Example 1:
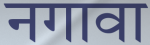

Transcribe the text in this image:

नगावा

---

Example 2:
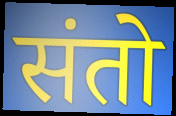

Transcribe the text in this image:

संतो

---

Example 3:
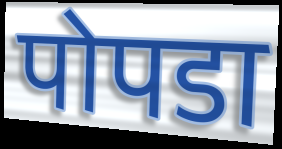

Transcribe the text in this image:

पोपडा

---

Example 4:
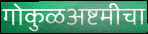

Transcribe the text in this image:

गोकुळअष्टमीचा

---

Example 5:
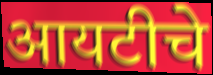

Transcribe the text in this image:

आयटीचे